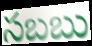
సబబు